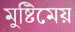
মুষ্টিমেয়